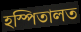
হস্পিতালত